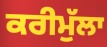
ਕਰੀਮੁੱਲਾ